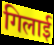
गिलाई